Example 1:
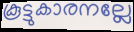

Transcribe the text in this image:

കൂട്ടുകാരനല്ലേ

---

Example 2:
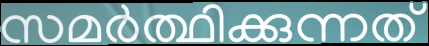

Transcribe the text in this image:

സമർത്ഥിക്കുന്നത്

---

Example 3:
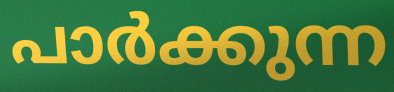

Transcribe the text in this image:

പാർക്കുന്ന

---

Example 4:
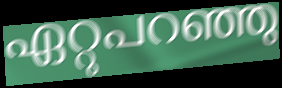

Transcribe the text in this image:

ഏറ്റുപറഞ്ഞു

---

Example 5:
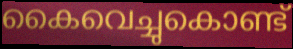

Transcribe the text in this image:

കൈവെച്ചുകൊണ്ട്